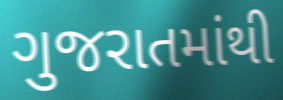
ગુજરાતમાંથી